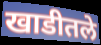
खाडीतले